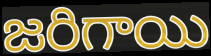
జరిగాయి